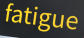
fatigue